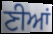
ਣੀਆਂ